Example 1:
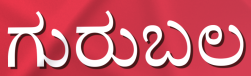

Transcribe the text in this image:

ಗುರುಬಲ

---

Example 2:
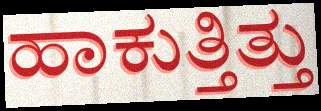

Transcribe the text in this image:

ಹಾಕುತ್ತಿತ್ತು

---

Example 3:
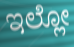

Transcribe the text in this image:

ಇಲ್ಲೋ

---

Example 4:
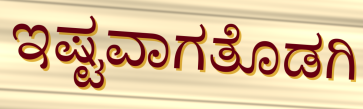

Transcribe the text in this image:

ಇಷ್ಟವಾಗತೊಡಗಿ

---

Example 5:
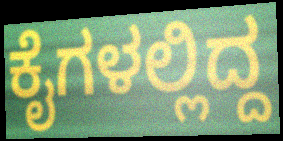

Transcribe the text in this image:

ಕೈಗಳಲ್ಲಿದ್ದ